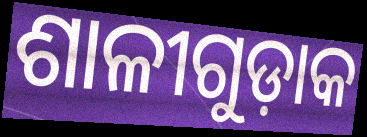
ଶାଳୀଗୁଡ଼ାକ